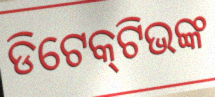
ଡିଟେକ୍‌ଟିଭଙ୍କ